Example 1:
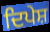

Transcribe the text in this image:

ਦਿਪੇਸ਼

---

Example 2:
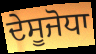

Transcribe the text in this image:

ਦੇਸੂਜੋਧਾ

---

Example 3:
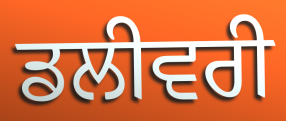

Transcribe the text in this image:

ਡਲੀਵਰੀ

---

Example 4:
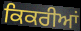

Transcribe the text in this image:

ਕਿਕਰੀਆਂ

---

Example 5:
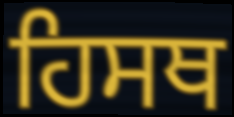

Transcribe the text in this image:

ਹਿਸਥ